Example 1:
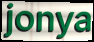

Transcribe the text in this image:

jonya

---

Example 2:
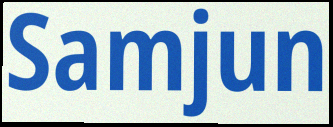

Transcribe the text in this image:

Samjun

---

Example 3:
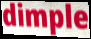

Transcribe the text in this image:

dimple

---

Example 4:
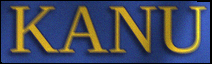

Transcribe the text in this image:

KANU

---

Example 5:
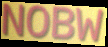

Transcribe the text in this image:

NOBW